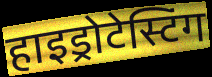
हाइड्रोटेस्टिंग